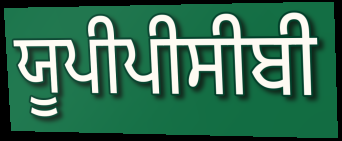
ਯੂਪੀਪੀਸੀਬੀ